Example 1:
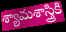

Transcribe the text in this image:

శ్యామశాస్త్రికి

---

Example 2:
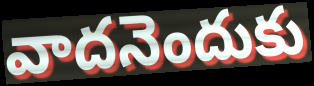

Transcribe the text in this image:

వాదనెందుకు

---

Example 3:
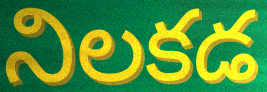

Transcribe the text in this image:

నిలకడ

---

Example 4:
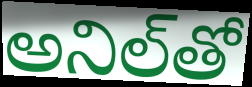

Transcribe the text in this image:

అనిల్‌తో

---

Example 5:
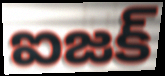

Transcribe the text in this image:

ఐజక్